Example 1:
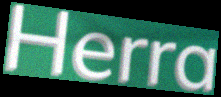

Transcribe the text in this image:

Herra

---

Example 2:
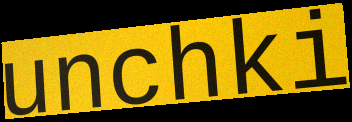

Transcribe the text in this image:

unchki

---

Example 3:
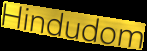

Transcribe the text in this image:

Hindudom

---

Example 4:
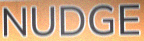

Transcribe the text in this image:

NUDGE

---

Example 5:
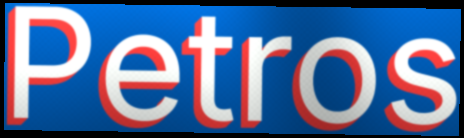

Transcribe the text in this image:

Petros